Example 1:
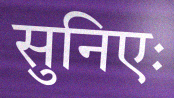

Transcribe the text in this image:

सुनिएः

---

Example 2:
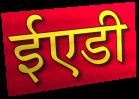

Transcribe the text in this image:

ईएडी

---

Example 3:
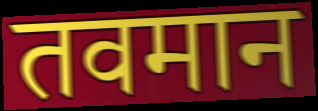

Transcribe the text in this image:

तवमान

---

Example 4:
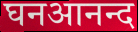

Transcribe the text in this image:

घनआनन्द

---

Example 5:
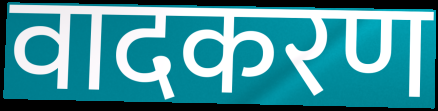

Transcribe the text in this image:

वादकरण